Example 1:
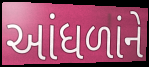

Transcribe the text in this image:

આંધળાંને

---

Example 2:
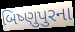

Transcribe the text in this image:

બિષ્ણુપુરના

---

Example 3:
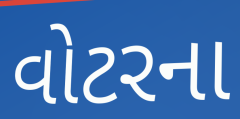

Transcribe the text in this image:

વોટરના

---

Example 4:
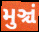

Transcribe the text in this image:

મુઞ્ચં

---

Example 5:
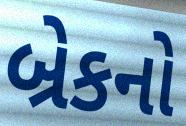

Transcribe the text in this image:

બ્રેકનો